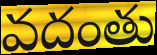
వదంతు